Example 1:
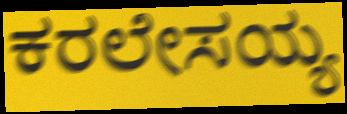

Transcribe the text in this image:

ಕರಲೇಸಯ್ಯ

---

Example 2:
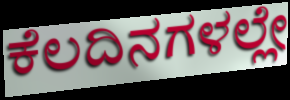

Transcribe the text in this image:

ಕೆಲದಿನಗಳಲ್ಲೇ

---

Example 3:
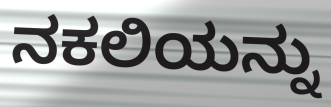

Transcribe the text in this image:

ನಕಲಿಯನ್ನು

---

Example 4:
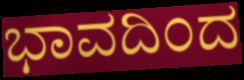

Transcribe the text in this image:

ಭಾವದಿಂದ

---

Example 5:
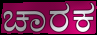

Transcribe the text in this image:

ಚಾರಕ